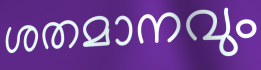
ശതമാനവും